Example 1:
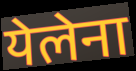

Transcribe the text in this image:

येलेना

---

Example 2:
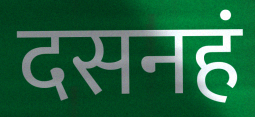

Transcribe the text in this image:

दसनहं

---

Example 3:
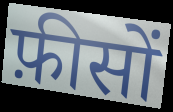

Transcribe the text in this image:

फ़ीसों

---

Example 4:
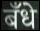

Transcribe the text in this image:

बँधे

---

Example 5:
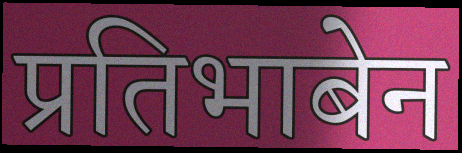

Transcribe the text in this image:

प्रतिभाबेन